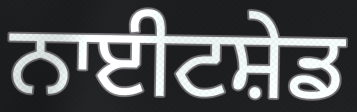
ਨਾਈਟਸ਼ੇਡ